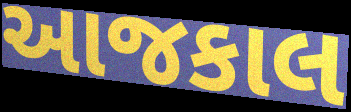
આજકાલ